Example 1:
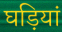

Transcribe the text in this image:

घड़ियां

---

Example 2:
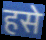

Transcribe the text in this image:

हसे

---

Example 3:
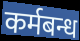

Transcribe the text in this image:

कर्मबन्ध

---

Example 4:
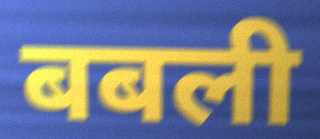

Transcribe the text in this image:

बबली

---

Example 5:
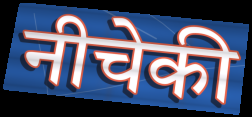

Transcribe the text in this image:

नीचेकी